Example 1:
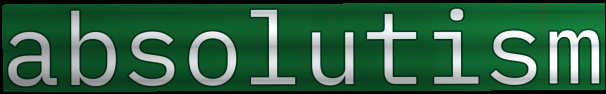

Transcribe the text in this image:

absolutism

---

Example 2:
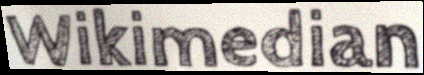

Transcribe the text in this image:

Wikimedian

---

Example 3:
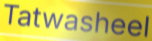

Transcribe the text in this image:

Tatwasheel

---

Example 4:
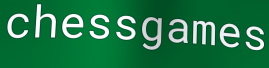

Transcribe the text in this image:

chessgames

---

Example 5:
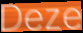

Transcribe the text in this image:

Deze